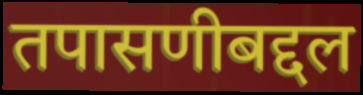
तपासणीबद्दल